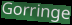
Gorringe